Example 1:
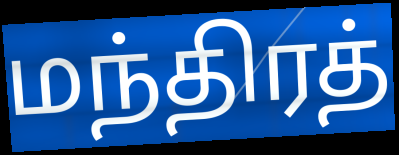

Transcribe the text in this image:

மந்திரத்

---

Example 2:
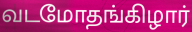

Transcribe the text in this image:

வடமோதங்கிழார்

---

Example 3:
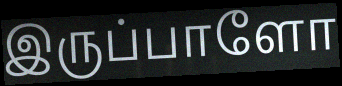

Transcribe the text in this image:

இருப்பாளோ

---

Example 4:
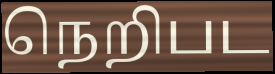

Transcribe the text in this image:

நெறிபட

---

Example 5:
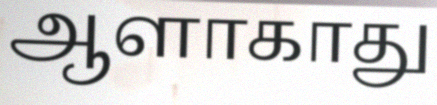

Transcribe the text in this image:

ஆளாகாது